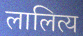
लालित्य